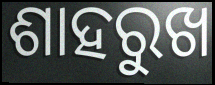
ଶାହରୁଖ